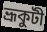
ভ্রূকুটী